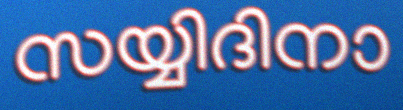
സയ്യിദിനാ